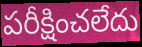
పరీక్షించలేదు